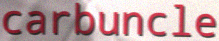
carbuncle